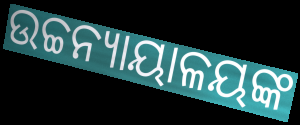
ଉଚ୍ଚନ୍ୟାୟାଳୟଙ୍କ